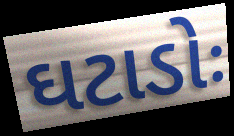
ઘટાડોઃ